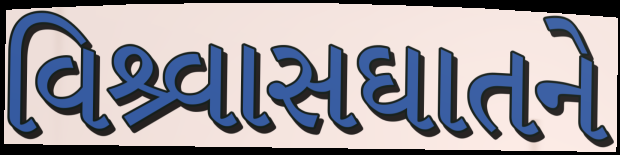
વિશ્ર્વાસઘાતને